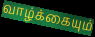
வாழ்க்கையும்